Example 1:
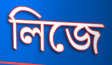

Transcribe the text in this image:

লিজে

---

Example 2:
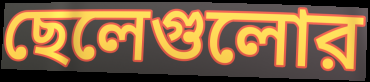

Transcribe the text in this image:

ছেলেগুলোর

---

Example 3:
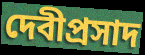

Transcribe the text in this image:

দেবীপ্রসাদ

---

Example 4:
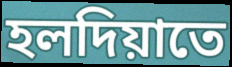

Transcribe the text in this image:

হলদিয়াতে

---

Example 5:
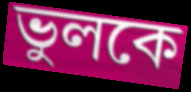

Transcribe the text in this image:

ভুলকে